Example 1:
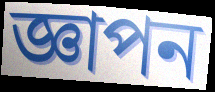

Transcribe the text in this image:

জ্ঞাপন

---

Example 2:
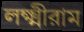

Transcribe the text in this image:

লক্ষ্মীরাম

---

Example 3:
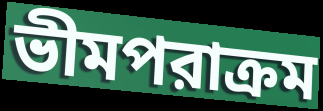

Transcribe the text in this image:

ভীমপরাক্রম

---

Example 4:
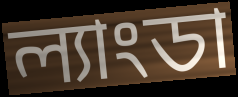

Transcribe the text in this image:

ল্যাংডা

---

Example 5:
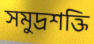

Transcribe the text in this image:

সমুদ্রশক্তি